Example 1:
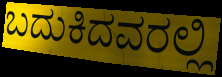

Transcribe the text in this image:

ಬದುಕಿದವರಲ್ಲಿ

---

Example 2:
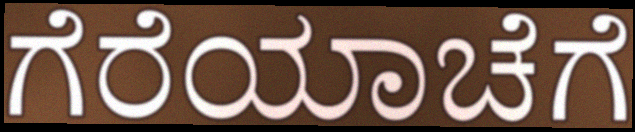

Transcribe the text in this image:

ಗೆರೆಯಾಚೆಗೆ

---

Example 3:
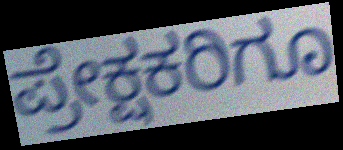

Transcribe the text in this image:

ಪ್ರೇಕ್ಷಕರಿಗೂ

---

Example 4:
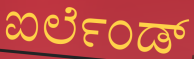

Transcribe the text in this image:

ಐರ್ಲೆಂಡ್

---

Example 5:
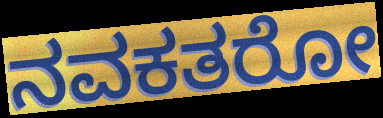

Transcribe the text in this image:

ನವಕತರೋ